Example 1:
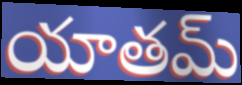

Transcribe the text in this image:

యాతమ్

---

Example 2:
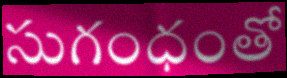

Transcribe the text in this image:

సుగంధంతో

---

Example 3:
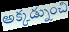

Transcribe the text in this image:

అక్కడ్నుంచి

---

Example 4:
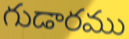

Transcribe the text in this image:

గుడారము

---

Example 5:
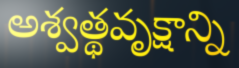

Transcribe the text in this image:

అశ్వత్థవృక్షాన్ని